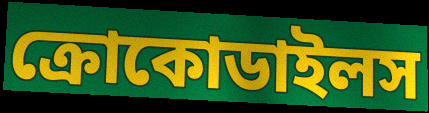
ক্রোকোডাইলস